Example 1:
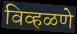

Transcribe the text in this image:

विव्हळणे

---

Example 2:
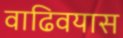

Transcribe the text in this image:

वाढिवयास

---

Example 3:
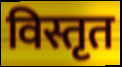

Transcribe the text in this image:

विस्तृत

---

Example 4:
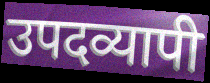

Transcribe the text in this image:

उपदव्यापी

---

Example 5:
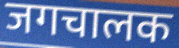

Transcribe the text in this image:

जगचालक